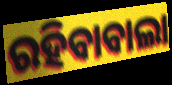
ରହିବାବାଲା